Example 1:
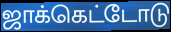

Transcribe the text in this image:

ஜாக்கெட்டோடு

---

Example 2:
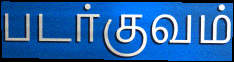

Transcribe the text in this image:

படர்குவம்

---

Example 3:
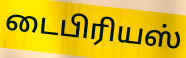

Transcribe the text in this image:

டைபிரியஸ்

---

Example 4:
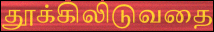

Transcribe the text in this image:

தூக்கிலிடுவதை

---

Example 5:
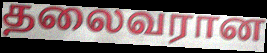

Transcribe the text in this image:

தலைவரான